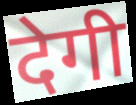
देगी